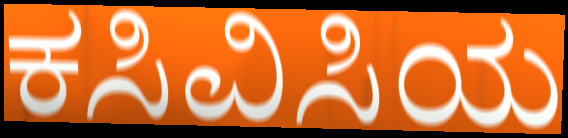
ಕಸಿವಿಸಿಯ